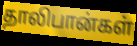
தாலிபான்கள்